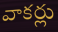
వాకర్లు